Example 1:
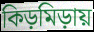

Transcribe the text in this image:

কিড়মিড়ায়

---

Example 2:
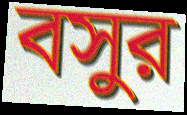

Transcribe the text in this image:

বসুর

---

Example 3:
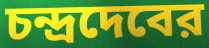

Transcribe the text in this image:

চন্দ্রদেবের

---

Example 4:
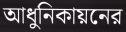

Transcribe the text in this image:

আধুনিকায়নের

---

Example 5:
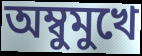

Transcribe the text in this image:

অম্বুমুখে